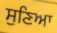
ਸੁਣਿਆ